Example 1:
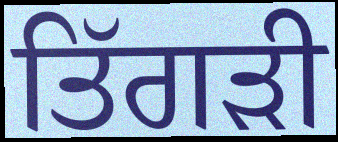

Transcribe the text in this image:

ਤਿੱਗੜੀ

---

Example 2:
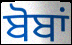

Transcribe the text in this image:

ਬੋਬਾਂ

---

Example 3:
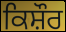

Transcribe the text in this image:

ਕਿਸ਼ੌਰ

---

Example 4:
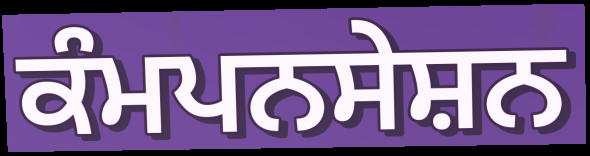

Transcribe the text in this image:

ਕੰਮਪਨਸੇਸ਼ਨ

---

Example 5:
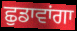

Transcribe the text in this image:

ਛੁਡਾਵਾਂਗਾ